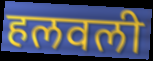
हलवली